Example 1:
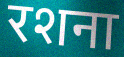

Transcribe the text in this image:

रशना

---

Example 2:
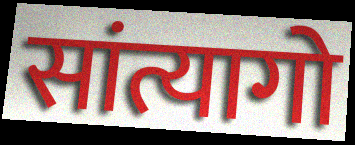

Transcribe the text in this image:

सांत्यागो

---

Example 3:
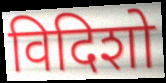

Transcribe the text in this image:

विदिशो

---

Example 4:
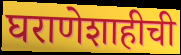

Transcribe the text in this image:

घराणेशाहीची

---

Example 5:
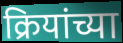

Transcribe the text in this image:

क्रियांच्या